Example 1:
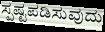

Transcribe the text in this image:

ಸ್ಪಷ್ಟಪಡಿಸುವುದು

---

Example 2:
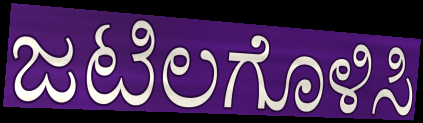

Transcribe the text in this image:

ಜಟಿಲಗೊಳಿಸಿ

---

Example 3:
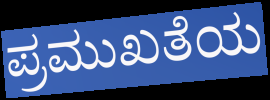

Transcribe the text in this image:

ಪ್ರಮುಖತೆಯ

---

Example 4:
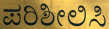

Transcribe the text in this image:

ಪರಿಶೀಲಿಸಿ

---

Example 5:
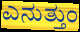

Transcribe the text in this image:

ಎನುತ್ತುಂ